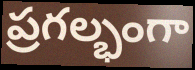
ప్రగల్భంగా